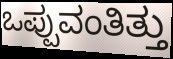
ಒಪ್ಪುವಂತಿತ್ತು